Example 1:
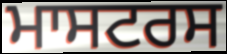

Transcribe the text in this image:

ਮਾਸਟਰਸ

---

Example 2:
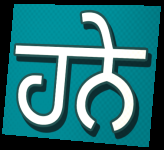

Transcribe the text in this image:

ਹਨੇ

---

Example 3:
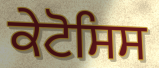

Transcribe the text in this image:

ਕੇਟੋਸਿਸ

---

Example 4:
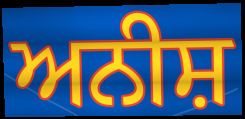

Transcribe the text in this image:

ਅਨੀਸ਼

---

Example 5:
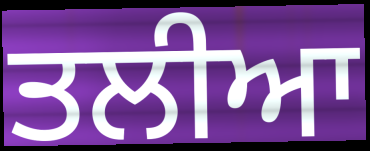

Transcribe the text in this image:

ਤਲੀਆ